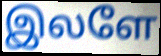
இலளே